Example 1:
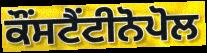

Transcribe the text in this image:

ਕੌਂਸਟੈਂਟੀਨੋਪੋਲ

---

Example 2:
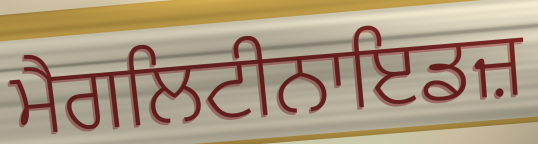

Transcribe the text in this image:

ਮੈਗਲਿਟੀਨਾਇਡਜ਼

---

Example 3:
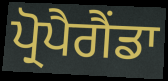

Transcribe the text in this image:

ਪ੍ਰੋਪੈਗੈਂਡਾ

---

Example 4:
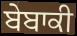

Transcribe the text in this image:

ਬੇਬਾਕੀ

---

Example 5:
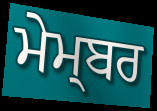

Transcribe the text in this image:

ਮੇਮ੍ਬਰ